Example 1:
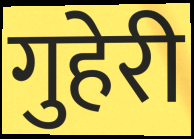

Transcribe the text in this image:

गुहेरी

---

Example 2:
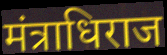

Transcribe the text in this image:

मंत्राधिराज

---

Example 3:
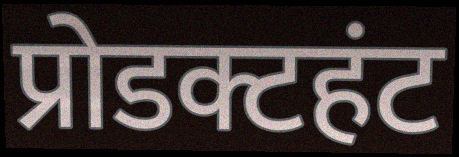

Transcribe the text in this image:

प्रोडक्टहंट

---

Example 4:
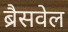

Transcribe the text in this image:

ब्रैसवेल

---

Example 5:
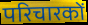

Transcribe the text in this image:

परिचारकों